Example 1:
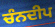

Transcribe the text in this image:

ਚੰਨਦੀਪ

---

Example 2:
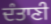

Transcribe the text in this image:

ਦੰਤਾਣੀ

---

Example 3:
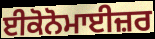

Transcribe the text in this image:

ਈਕੋਨੋਮਾਈਜ਼ਰ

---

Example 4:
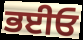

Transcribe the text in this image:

ਭਈਓ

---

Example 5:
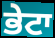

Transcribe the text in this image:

ਭੇਟਾ